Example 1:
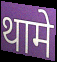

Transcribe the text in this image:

थामे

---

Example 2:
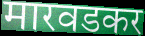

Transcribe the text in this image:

मारवडकर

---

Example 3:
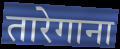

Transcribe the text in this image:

तारेगाना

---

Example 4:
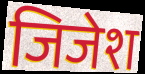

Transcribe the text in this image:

जिजेश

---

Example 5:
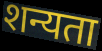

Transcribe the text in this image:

शन्यता